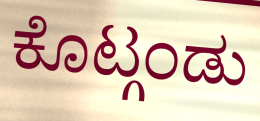
ಕೊಟ್ಗಂಡು